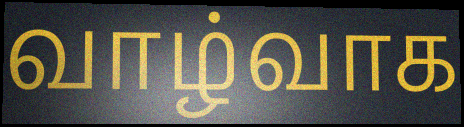
வாழ்வாக